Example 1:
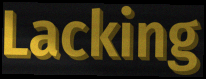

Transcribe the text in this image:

Lacking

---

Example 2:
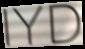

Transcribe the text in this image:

IYD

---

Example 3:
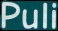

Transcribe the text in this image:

Puli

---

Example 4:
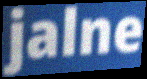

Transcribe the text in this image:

jalne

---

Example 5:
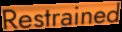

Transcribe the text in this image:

Restrained